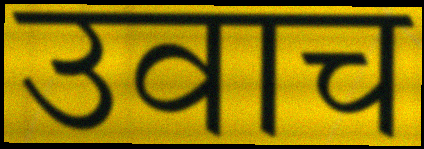
उवाच